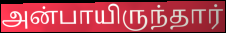
அன்பாயிருந்தார்